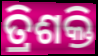
ତ୍ରିଶକ୍ତି